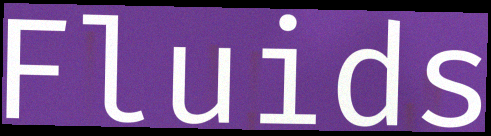
Fluids